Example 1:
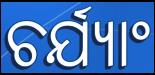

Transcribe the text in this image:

ଚର୍ଯ୍ୟାଂ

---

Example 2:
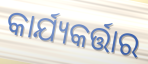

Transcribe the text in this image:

କାର୍ଯ୍ୟକର୍ତ୍ତାର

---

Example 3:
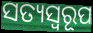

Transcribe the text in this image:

ସତ୍ୟସ୍ୱରୂପ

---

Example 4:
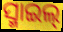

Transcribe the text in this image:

ସ୍ମାଇଲ୍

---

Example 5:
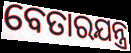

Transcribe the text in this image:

ବେତାରଯନ୍ତ୍ର